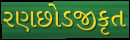
રણછોડજીકૃત